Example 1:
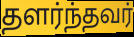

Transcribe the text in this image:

தளர்ந்தவர்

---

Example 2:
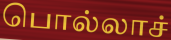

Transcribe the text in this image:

பொல்லாச்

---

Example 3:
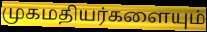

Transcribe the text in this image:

முகமதியர்களையும்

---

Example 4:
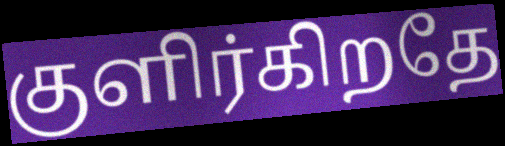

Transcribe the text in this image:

குளிர்கிறதே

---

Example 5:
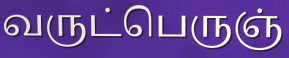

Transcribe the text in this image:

வருட்பெருஞ்